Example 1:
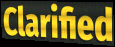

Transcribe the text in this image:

Clarified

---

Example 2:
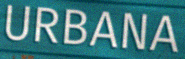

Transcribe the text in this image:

URBANA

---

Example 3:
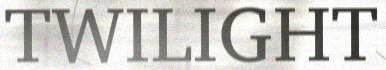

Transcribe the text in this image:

TWILIGHT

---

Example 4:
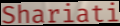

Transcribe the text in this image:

Shariati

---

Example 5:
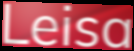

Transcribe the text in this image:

Leisa